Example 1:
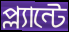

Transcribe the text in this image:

প্ল্যান্টে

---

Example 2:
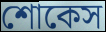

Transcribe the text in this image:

শোকেস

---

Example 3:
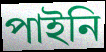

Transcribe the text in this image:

পাইনি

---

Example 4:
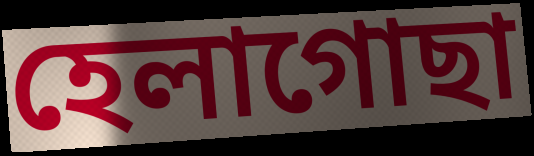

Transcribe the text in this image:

হেলাগোছা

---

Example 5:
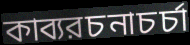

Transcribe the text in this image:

কাব্যরচনাচর্চা